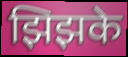
झिझके